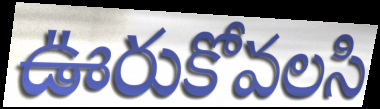
ఊరుకోవలసి